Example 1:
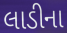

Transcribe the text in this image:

લાડીના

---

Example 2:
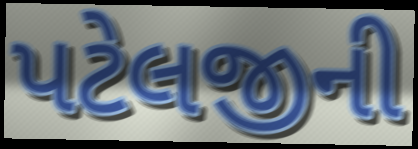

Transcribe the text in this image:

પટેલજીની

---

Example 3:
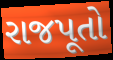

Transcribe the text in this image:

રાજપૂતો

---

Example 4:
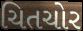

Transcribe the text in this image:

ચિતચોર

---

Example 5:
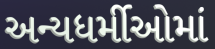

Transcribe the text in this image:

અન્યધર્મીઓમાં